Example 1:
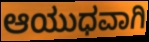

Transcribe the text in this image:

ಆಯುಧವಾಗಿ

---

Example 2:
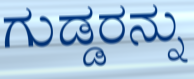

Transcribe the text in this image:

ಗುಡ್ಡರನ್ನು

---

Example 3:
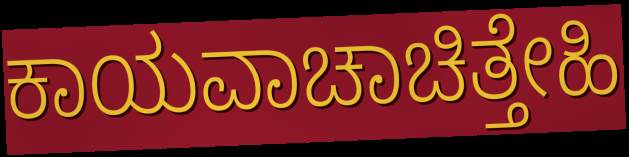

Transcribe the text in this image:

ಕಾಯವಾಚಾಚಿತ್ತೇಹಿ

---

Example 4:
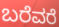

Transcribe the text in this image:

ಬರೆವರೆ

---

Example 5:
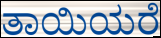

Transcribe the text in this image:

ತಾಯಿಯರೆ